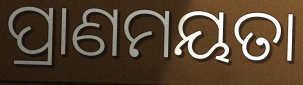
ପ୍ରାଣମୟତା